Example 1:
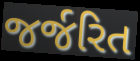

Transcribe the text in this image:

જર્જરિત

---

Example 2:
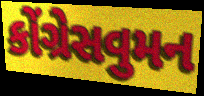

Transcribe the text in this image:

કોંગ્રેસવુમન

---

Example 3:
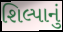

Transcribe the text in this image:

શિલ્પાનું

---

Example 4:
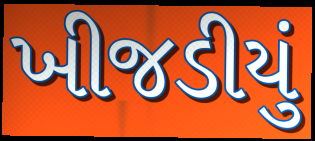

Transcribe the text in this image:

ખીજડીયું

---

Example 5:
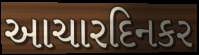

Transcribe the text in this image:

આચારદિનકર